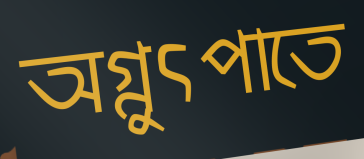
অগ্নুৎপাতে